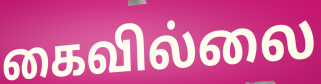
கைவில்லை